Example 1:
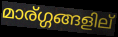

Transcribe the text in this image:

മാര്ഗ്ഗങ്ങളില്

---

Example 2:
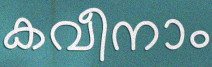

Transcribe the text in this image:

കവീനാം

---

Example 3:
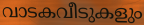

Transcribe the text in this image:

വാടകവീടുകളും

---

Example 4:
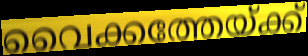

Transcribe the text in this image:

വൈക്കത്തേയ്ക്ക്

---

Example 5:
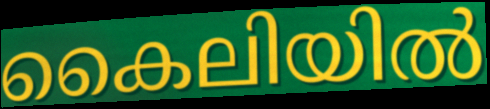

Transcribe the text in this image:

കൈലിയിൽ